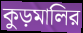
কুড়মালির